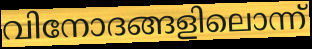
വിനോദങ്ങളിലൊന്ന്